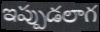
ఇప్పుడలాగ